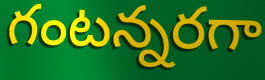
గంటన్నరగా